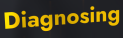
Diagnosing